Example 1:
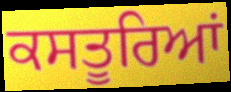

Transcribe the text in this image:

ਕਸਤੂਰਿਆਂ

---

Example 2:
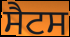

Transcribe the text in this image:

ਸੈਟਸ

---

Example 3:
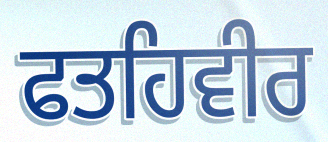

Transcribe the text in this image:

ਫਤਹਿਵੀਰ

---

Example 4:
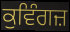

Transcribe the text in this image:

ਕੁਵਿੰਗਜ਼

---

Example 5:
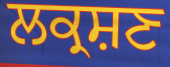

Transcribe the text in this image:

ਲਕ੍ਰਸ਼ਣ